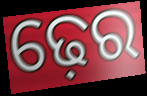
ଢ଼େର